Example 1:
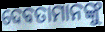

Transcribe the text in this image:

ଦେବତାମାନଙ୍କୁ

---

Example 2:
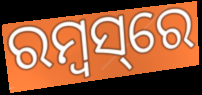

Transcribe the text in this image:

ରମ୍ବସ୍‌ରେ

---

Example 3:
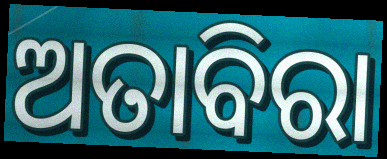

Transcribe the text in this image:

ଅତାବିରା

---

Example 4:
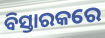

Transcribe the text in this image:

ବିସ୍ତାରକରେ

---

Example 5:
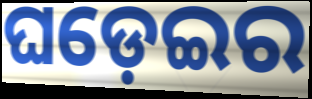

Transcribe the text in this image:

ଘଡ଼େଇର